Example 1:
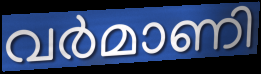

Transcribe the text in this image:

വർമാണി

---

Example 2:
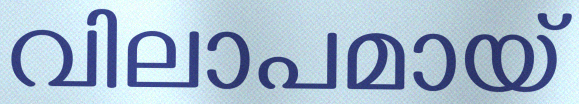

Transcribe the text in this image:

വിലാപമായ്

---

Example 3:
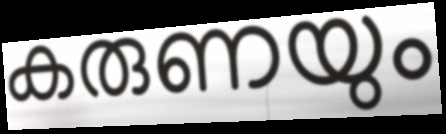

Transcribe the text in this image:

കരുണയും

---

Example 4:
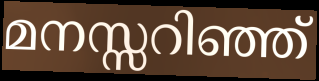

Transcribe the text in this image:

മനസ്സറിഞ്ഞ്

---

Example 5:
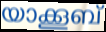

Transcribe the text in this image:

യാക്കൂബ്